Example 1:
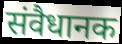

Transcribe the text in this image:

संवैधानक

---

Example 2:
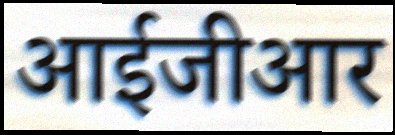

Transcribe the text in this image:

आईजीआर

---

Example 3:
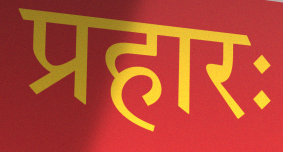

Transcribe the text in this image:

प्रहारः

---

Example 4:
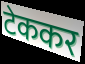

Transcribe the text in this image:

टेककर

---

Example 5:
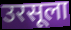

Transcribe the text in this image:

उरसूला